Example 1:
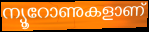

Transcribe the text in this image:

ന്യൂറോണുകളാണ്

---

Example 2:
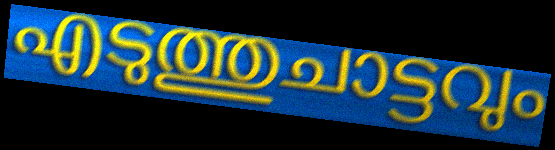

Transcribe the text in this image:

എടുത്തുചാട്ടവും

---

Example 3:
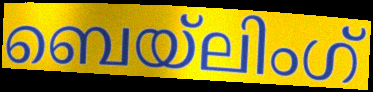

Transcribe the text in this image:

ബെയ്ലിംഗ്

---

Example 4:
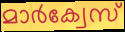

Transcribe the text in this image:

മാർക്വേസ്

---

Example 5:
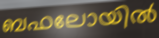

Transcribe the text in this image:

ബഫലോയിൽ